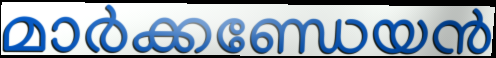
മാർക്കണ്ഡേയൻ